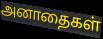
அனாதைகள்